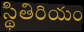
స్థితిరియం